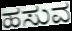
ಹಸುವ